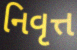
નિવૃત્ત